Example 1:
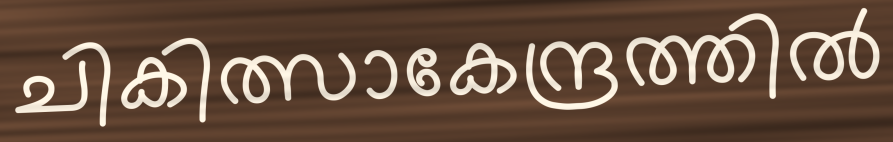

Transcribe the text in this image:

ചികിത്സാകേന്ദ്രത്തിൽ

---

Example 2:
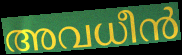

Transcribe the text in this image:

അവധീൻ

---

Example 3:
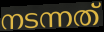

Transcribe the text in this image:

നടന്നത്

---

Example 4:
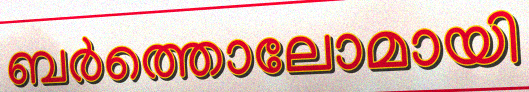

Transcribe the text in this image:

ബർത്തൊലോമായി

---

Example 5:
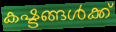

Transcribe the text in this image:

കഷ്ടങ്ങൾക്ക്